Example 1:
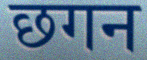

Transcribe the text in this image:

छगन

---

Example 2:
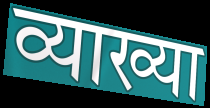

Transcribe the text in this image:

व्याख्या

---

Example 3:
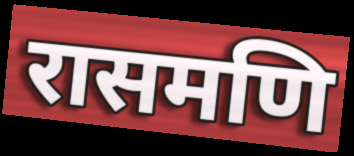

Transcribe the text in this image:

रासमणि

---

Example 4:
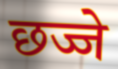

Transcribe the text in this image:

छज्जे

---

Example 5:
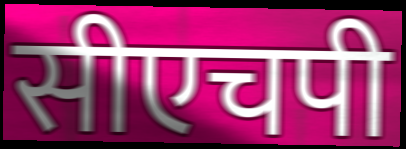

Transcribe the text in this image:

सीएचपी